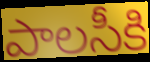
పాలసీకి